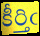
కీర్తిఁ